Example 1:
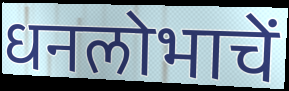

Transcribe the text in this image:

धनलोभाचें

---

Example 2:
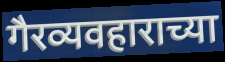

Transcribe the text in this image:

गैरव्यवहाराच्या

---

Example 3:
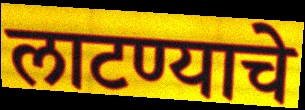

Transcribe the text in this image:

लाटण्याचे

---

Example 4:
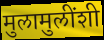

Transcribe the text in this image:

मुलामुलींशी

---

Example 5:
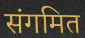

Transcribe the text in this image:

संगमित